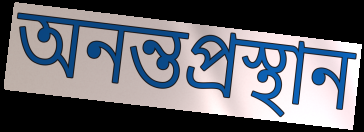
অনন্তপ্রস্থান